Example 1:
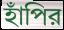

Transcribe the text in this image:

হাঁপির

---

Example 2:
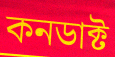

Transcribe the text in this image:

কনডাক্ট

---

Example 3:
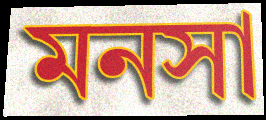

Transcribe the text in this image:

মনসা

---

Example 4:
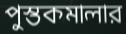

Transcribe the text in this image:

পুস্তকমালার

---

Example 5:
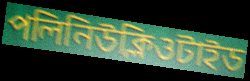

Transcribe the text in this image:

পলিনিউক্লিওটাইড